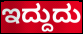
ಇದ್ದುದು